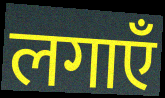
लगाएँ